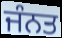
ਜੰਨਤ